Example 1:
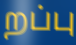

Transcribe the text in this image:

றப்பு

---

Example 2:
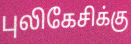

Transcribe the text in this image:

புலிகேசிக்கு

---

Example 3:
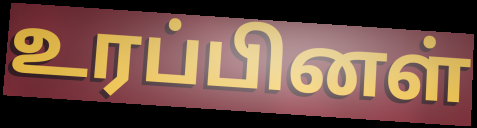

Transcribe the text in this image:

உரப்பினள்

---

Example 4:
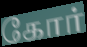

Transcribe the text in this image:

கோர்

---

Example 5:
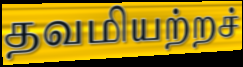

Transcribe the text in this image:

தவமியற்றச்